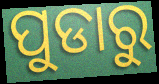
ପୁଡାରୁ